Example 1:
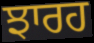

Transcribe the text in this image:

ਝਾਰਹ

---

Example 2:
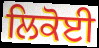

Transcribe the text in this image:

ਲਿਕੋਈ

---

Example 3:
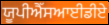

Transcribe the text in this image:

ਯੂਪੀਐੱਸਆਈਡੀਏ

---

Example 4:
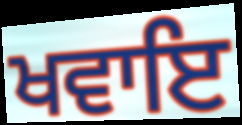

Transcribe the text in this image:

ਖਵਾਇ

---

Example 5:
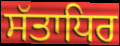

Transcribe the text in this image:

ਸੱਤਾਧਿਰ